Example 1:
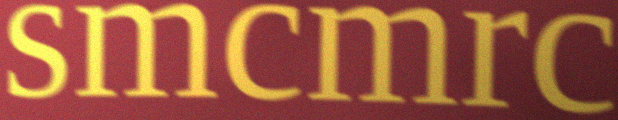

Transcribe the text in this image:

smcmrc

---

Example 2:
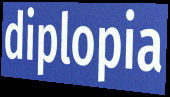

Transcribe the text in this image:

diplopia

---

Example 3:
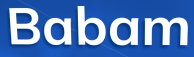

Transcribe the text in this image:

Babam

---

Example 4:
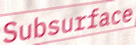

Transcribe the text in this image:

Subsurface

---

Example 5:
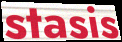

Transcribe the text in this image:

stasis